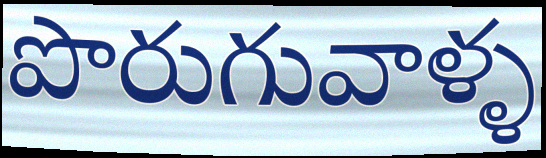
పొరుగువాళ్ళ